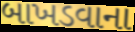
બાખડવાના